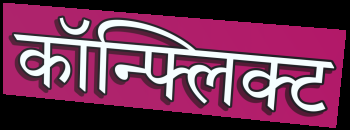
कॉन्फ्लिक्ट